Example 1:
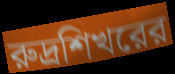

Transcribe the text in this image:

রুদ্রশিখরের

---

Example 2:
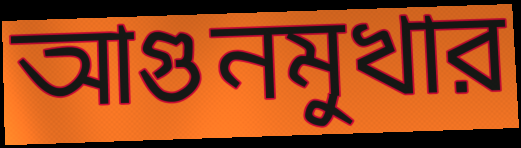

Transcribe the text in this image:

আগুনমুখার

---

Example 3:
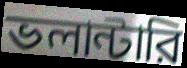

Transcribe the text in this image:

ভলান্টারি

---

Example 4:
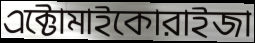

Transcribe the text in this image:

এক্টোমাইকোরাইজা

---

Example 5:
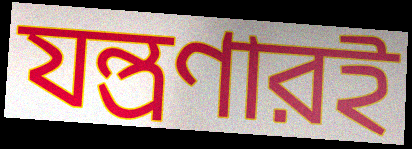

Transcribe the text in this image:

যন্ত্রণারই